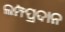
ଲମ୍ଫପ୍ରଦାନ